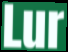
Lur